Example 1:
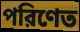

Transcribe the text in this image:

পরিণেত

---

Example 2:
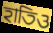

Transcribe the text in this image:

হাতিও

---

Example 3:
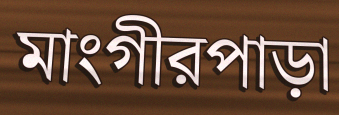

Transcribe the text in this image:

মাংগীরপাড়া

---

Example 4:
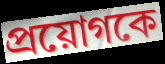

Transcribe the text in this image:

প্রয়োগকে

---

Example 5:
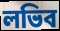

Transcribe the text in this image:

লভিব